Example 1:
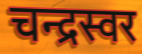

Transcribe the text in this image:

चन्द्रस्वर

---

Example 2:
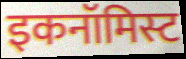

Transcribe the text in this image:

इकनॉमिस्‍ट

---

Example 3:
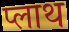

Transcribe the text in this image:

प्लाथ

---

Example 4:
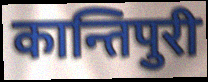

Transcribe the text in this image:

कान्तिपुरी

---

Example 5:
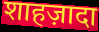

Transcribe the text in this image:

शाहज़ादा